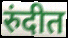
रुंदीत